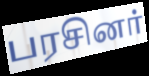
பரசினர்